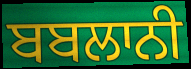
ਬਬਲਾਨੀ